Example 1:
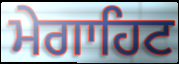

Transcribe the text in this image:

ਮੇਗਾਹਿਟ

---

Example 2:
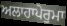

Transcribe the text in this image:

ਅਲਾਹਾਪੇਰੁਮਾ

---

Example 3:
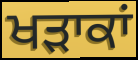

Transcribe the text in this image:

ਖੜਾਕਾਂ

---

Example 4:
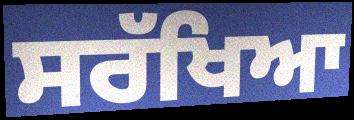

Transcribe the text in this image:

ਸਰੱਖਿਆ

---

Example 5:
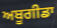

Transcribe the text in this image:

ਅਬੂਗੀਡਾ